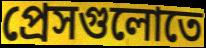
প্রেসগুলোতে